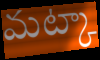
మట్కా